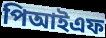
পিআইএফ